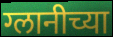
ग्लानीच्या